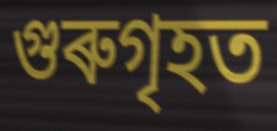
গুৰুগৃহত